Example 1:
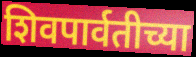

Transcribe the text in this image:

शिवपार्वतीच्या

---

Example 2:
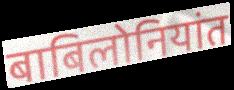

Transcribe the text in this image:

बाबिलोनियांत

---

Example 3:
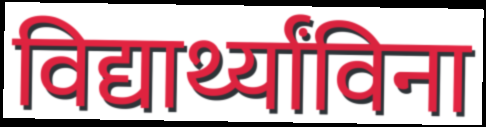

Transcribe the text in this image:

विद्यार्थ्यांविना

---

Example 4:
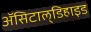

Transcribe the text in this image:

ॲसिटाल्डिहाइड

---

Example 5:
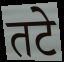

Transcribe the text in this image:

तटे